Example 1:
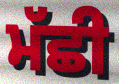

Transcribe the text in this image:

ਮੱਛੀ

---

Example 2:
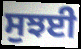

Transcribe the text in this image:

ਸੁਝਈ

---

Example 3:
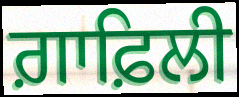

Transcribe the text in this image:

ਗ਼ਾਫ਼ਿਲੀ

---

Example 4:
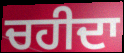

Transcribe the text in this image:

ਚਹੀਦਾ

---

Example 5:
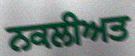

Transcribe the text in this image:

ਨਕਲੀਅਤ